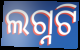
ଲଗ୍ନଟି